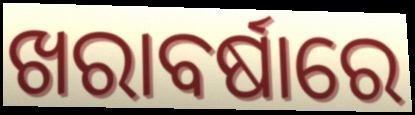
ଖରାବର୍ଷାରେ